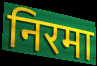
निरमा